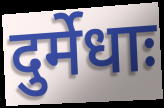
दुर्मेधाः